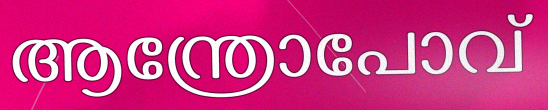
ആന്ത്രോപോവ്